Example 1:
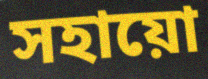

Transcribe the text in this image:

সহায়ো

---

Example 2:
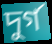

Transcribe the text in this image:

দুৰ্গ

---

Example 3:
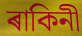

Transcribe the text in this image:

ৰাকিনী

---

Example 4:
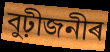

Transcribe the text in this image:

বুঢ়ীজনীৰ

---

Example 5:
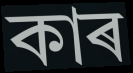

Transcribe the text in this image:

কাৰ